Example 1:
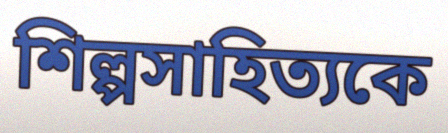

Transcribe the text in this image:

শিল্পসাহিত্যকে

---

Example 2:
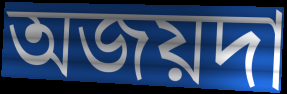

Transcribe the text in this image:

অজয়দা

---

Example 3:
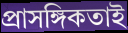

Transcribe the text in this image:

প্রাসঙ্গিকতাই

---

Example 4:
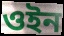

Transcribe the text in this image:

ওইন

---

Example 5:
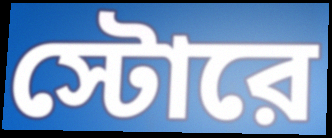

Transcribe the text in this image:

স্টোরে